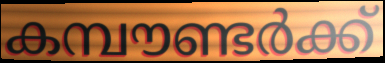
കമ്പൗണ്ടർക്ക്